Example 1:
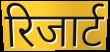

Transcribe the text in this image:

रिजार्ट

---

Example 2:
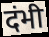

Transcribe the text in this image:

दंभी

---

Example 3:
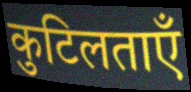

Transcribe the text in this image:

कुटिलताएँ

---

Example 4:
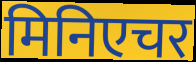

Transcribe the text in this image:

मिनिएचर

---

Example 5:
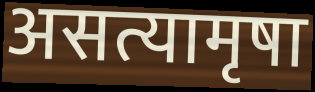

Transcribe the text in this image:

असत्यामृषा